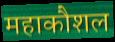
महाकौशल